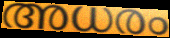
അധരം